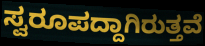
ಸ್ವರೂಪದ್ದಾಗಿರುತ್ತವೆ